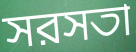
সরসতা